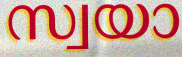
സ്വയാ